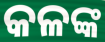
କଳଙ୍କ